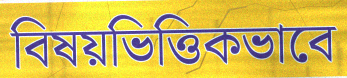
বিষয়ভিত্তিকভাবে